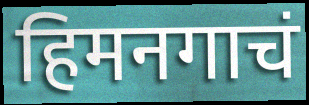
हिमनगाचं